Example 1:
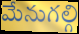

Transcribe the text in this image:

మేనుగల్గి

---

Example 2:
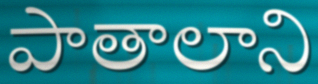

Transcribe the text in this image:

పాతాలాని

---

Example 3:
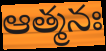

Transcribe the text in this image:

ఆత్మనః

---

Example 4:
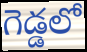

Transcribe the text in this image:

గెడ్డలో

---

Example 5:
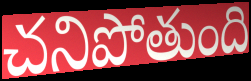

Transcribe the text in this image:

చనిపోతుంది